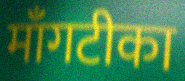
माँगटीका